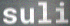
suli